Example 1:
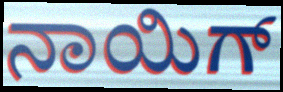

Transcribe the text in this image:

ನಾಯಿಗ್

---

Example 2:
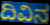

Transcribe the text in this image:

ದಿವಿನ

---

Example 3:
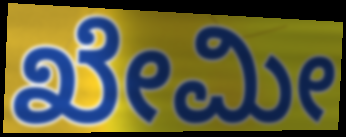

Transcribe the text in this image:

ಖೇಮೀ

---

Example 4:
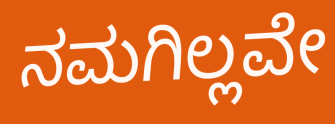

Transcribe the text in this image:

ನಮಗಿಲ್ಲವೇ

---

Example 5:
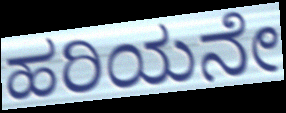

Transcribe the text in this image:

ಹರಿಯನೇ